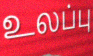
உலப்பு